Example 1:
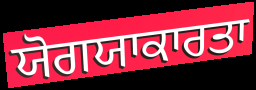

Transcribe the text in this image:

ਯੋਗਯਾਕਾਰਤਾ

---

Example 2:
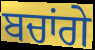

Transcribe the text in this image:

ਬਚਾਂਗੇ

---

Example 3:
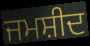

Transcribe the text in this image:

ਜਮਸ਼ੀਦ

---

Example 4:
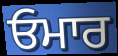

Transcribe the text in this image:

ਓਮਾਰ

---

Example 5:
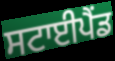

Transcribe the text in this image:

ਸਟਾਈਪੈਂਡ